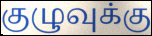
குழுவுக்கு